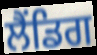
ਲੈਂਡਿਗ